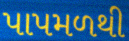
પાપમળથી